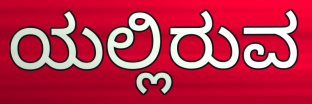
ಯಲ್ಲಿರುವ